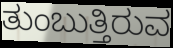
ತುಂಬುತ್ತಿರುವ